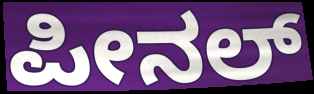
ಪೀನಲ್